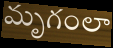
మృగంలా